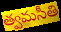
త్వమసీతి